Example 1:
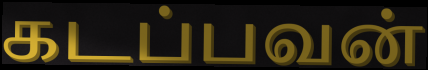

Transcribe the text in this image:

கடப்பவன்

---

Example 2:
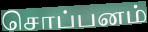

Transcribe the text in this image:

சொப்பனம்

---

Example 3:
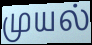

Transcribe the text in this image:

முயல்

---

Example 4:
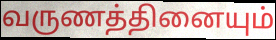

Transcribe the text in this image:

வருணத்தினையும்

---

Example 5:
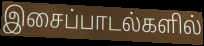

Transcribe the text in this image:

இசைப்பாடல்களில்